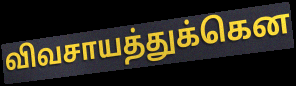
விவசாயத்துக்கென